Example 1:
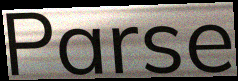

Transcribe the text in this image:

Parse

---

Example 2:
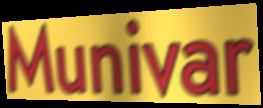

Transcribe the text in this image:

Munivar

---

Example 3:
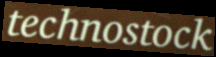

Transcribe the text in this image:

technostock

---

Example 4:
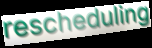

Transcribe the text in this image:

rescheduling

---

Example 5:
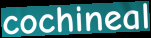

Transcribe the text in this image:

cochineal